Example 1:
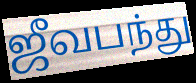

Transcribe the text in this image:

ஜீவபந்து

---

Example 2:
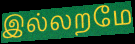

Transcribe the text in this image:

இல்லறமே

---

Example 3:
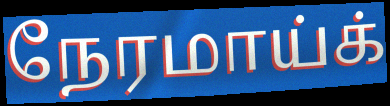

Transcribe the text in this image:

நேரமாய்க்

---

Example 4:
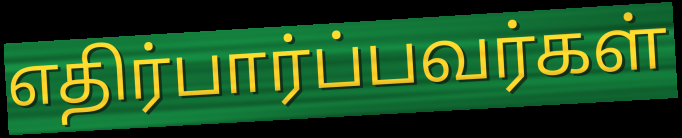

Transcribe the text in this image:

எதிர்பார்ப்பவர்கள்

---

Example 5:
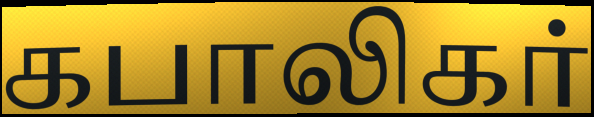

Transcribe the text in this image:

கபாலிகர்